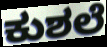
ಕುಶಲೆ